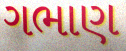
ગભાણ